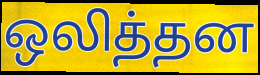
ஒலித்தன